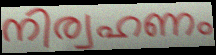
നിര്വഹണം